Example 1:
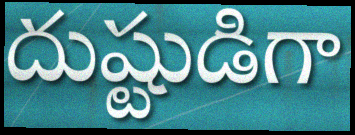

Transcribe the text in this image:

దుష్టుడిగా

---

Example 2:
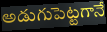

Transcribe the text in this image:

అడుగుపెట్టగానే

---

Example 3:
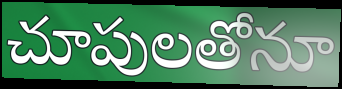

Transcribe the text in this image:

చూపులతోనూ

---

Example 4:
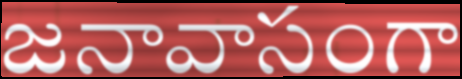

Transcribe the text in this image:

జనావాసంగా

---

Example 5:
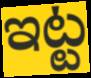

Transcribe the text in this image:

ఇట్ట